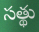
సత్థు